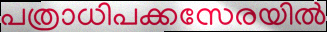
പത്രാധിപക്കസേരയിൽ